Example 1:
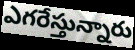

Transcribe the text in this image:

ఎగరేస్తున్నారు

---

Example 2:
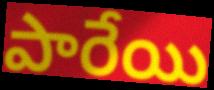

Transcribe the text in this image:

పారేయి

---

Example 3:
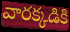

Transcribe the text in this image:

వారక్కడికి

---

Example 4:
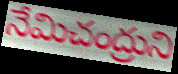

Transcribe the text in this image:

నేమిచంద్రుని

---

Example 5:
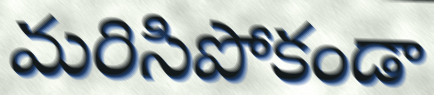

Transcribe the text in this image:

మరిసిపోకండా